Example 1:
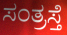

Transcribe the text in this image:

ಸಂತ್ರಸ್ತೆ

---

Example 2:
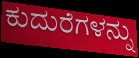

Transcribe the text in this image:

ಕುದುರೆಗಳನ್ನು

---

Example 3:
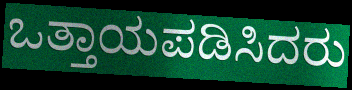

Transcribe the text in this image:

ಒತ್ತಾಯಪಡಿಸಿದರು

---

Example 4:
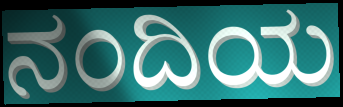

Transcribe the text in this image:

ನಂದಿಯ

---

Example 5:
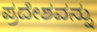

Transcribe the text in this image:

ಪ್ರದೇಶವನ್ನು